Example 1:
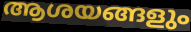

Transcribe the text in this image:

ആശയങ്ങളും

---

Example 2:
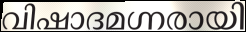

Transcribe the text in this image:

വിഷാദമഗ്നരായി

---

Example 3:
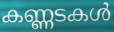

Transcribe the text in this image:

കണ്ണടകൾ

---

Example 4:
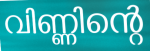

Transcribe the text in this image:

വിണ്ണിന്റെ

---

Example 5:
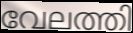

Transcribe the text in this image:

വേലത്തി